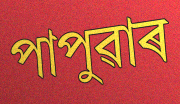
পাপুৱাৰ